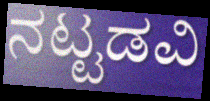
ನಟ್ಟಡವಿ